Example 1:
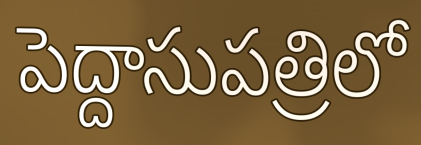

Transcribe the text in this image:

పెద్దాసుపత్రిలో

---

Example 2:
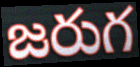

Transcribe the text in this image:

జరుగ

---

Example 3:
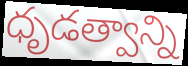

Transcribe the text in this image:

ధృడత్వాన్ని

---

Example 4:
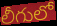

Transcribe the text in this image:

లీగులో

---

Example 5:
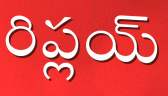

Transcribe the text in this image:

రిప్లయ్